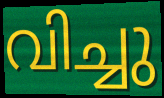
വിച്ചു